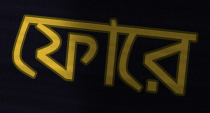
ফোরে